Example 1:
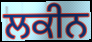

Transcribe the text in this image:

ਲਕੀਨ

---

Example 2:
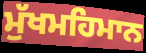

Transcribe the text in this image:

ਮੁੱਖਮਹਿਮਾਨ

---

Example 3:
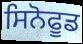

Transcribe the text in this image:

ਸਿਨੋਫੂਡ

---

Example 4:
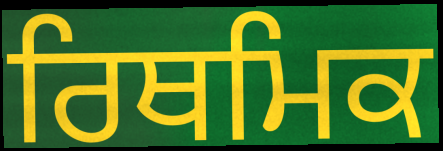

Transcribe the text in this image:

ਰਿਥਮਿਕ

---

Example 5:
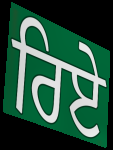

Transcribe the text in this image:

ਰਿਏ